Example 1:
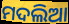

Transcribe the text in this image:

ମଦଲିଆ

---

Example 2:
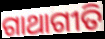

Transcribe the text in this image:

ଗାଥାଗୀତି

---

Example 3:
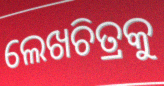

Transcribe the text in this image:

ଲେଖଚିତ୍ରକୁ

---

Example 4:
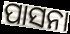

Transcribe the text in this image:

ପାସନା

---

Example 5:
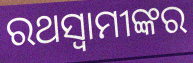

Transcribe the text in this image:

ରଥସ୍ୱାମୀଙ୍କର